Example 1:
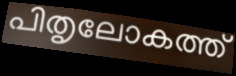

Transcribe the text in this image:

പിതൃലോകത്ത്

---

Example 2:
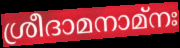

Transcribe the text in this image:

ശ്രീദാമനാമ്നഃ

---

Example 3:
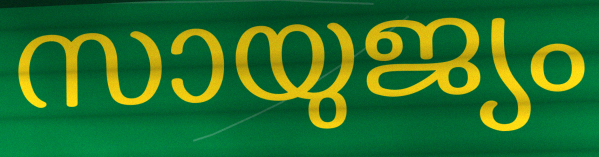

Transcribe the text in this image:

സായുജ്യം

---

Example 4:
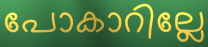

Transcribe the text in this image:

പോകാറില്ലേ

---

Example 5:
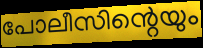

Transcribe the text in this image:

പോലീസിന്റെയും